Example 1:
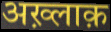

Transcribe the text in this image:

अख़्लाक़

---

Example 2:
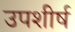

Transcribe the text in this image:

उपशीर्ष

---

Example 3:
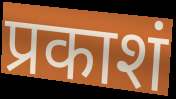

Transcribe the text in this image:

प्रकाशं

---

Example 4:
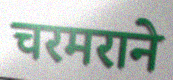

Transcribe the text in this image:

चरमराने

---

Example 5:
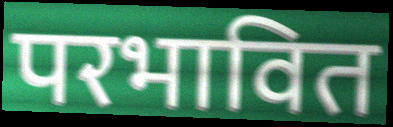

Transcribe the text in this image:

परभावित